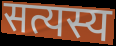
सत्यस्य